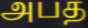
அபத